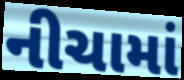
નીચામાં